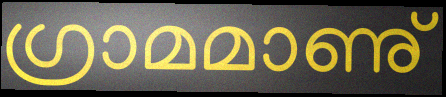
ഗ്രാമമാണു്